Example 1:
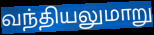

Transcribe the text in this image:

வந்தியலுமாறு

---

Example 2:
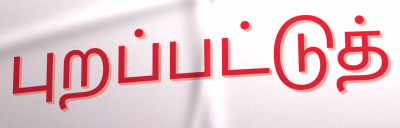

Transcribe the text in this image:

புறப்பட்டுத்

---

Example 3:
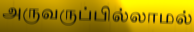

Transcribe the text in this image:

அருவருப்பில்லாமல்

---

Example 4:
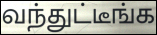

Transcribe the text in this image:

வந்துட்டீங்க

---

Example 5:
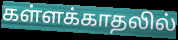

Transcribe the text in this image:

கள்ளக்காதலில்